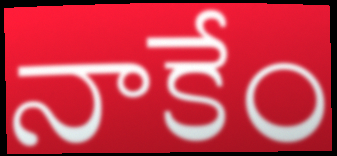
నాకేం